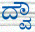
ದ್ವೌ